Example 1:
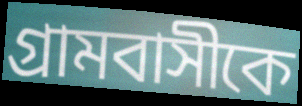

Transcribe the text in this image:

গ্রামবাসীকে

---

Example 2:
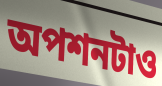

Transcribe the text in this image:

অপশনটাও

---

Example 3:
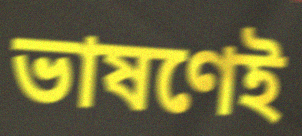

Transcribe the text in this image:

ভাষণেই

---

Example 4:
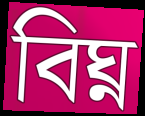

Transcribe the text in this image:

বিঘ্ন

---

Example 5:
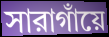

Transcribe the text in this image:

সারাগাঁয়ে